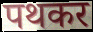
पथकर